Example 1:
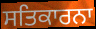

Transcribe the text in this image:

ਸਤਿਕਾਰਨਾ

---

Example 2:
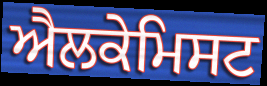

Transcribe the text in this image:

ਐਲਕੇਮਿਸਟ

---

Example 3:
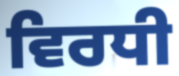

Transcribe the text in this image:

ਵਿਰਧੀ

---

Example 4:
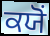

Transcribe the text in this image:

ਕਯੋਂ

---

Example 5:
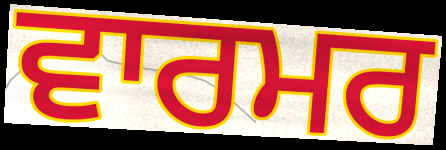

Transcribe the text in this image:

ਵਾਰਮਰ